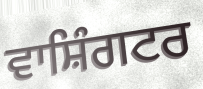
ਵਾਸ਼ਿੰਗਟਰ